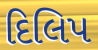
દિલિપ